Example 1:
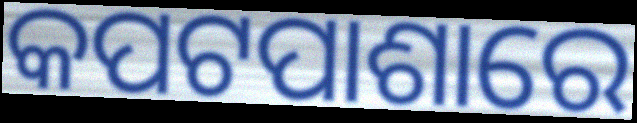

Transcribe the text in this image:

କପଟପାଶାରେ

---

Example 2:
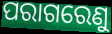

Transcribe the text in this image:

ପରାଗରେଣୁ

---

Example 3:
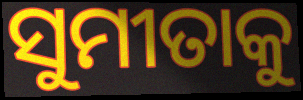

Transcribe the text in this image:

ସୁମୀତାକୁ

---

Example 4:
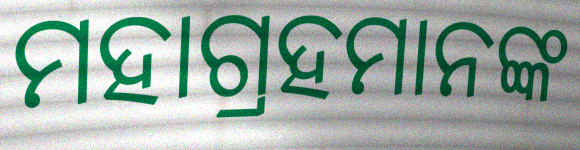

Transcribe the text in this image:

ମହାଗ୍ରହମାନଙ୍କ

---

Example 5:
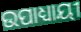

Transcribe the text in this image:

ଉପାଧ୍ୟାୟୀ